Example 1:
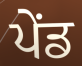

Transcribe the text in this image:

ਪੇਂਡ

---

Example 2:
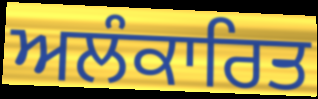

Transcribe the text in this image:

ਅਲੰਕਾਰਿਤ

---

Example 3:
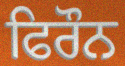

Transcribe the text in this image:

ਫਿਰੌਨ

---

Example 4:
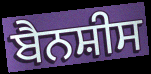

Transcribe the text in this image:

ਬੈਨਸ਼ੀਸ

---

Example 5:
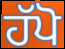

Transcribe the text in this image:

ਹੱਪੋ